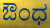
ಔಂಧ